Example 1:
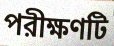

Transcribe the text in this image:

পরীক্ষণটি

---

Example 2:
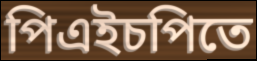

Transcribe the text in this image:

পিএইচপিতে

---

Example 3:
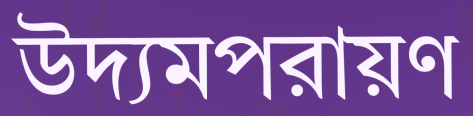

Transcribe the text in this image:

উদ্যমপরায়ণ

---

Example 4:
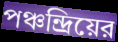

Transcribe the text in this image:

পঞ্চন্দ্রিয়ের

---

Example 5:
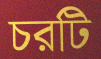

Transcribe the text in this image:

চরটি